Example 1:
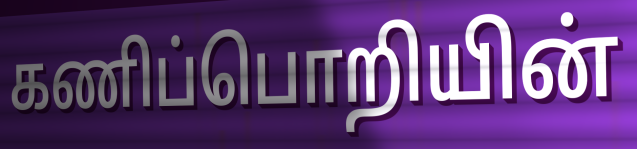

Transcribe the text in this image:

கணிப்பொறியின்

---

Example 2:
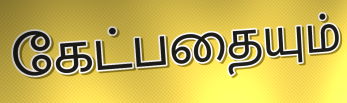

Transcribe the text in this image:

கேட்பதையும்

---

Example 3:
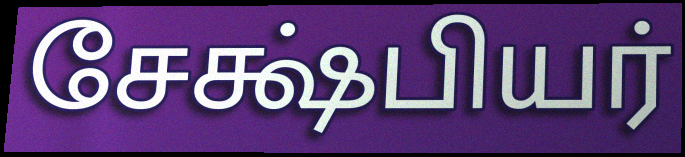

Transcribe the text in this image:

சேக்ஷ்பியர்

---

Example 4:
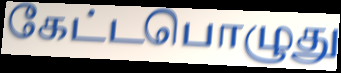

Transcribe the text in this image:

கேட்டபொழுது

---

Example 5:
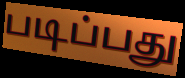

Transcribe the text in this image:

படிப்பது